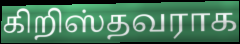
கிறிஸ்தவராக